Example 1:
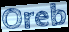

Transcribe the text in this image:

Oreb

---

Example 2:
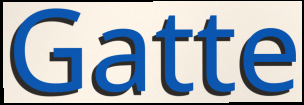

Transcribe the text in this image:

Gatte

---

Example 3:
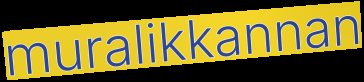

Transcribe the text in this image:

muralikkannan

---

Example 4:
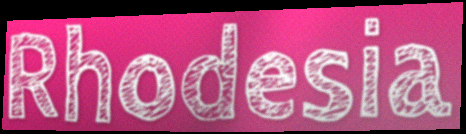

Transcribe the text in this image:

Rhodesia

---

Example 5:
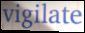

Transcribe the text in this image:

vigilate